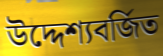
উদ্দেশ্যবর্জিত